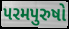
પરમપુરુષો